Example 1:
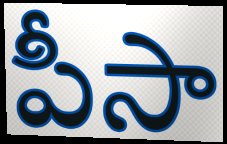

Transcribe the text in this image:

పీసా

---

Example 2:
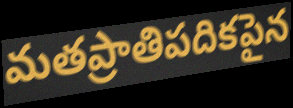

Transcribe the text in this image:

మతప్రాతిపదికపైన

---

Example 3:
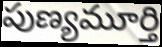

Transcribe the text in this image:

పుణ్యమూర్తి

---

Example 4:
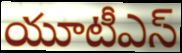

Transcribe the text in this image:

యూటీఎస్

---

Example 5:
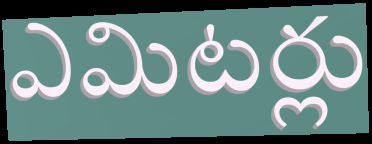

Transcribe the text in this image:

ఎమిటర్లు